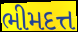
ભીમદત્ત